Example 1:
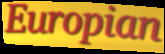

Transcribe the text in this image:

Europian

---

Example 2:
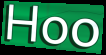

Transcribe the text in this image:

Hoo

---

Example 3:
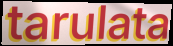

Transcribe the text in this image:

tarulata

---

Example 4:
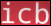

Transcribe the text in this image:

icb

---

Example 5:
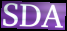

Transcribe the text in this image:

SDA